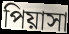
পিয়াসা